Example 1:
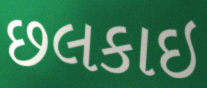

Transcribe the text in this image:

છલકાઇ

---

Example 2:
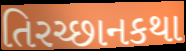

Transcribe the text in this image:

તિરચ્છાનકથા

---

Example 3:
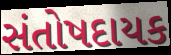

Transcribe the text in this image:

સંતોષદાયક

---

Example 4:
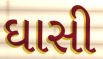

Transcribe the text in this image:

ઘાસી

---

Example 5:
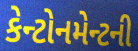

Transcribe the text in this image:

કેન્ટોનમેન્ટની